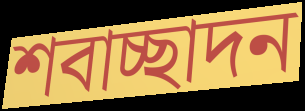
শবাচ্ছাদন